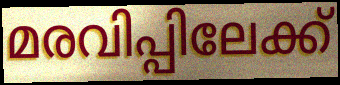
മരവിപ്പിലേക്ക്